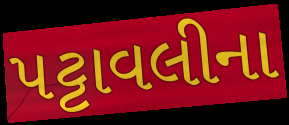
પટ્ટાવલીના